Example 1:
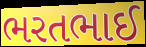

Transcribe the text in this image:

ભરતભાઈ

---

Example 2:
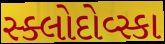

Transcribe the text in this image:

સ્ક્લોદોવ્સ્કા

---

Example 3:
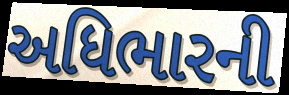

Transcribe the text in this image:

અધિભારની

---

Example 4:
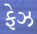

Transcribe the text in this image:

ફેઝ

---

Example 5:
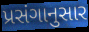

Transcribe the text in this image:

પ્રસંગાનુસાર